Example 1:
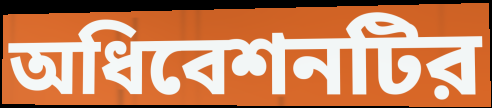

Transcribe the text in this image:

অধিবেশনটির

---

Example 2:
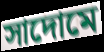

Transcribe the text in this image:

সাদোমে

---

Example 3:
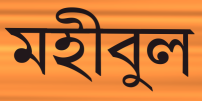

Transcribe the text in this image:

মহীবুল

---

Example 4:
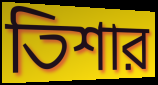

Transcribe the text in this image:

তিশার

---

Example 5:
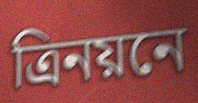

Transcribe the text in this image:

ত্রিনয়নে